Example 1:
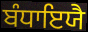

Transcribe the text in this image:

ਬੰਧਾਇਯੈ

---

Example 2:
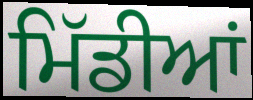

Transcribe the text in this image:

ਮਿੱਡੀਆਂ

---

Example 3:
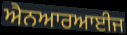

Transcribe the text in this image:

ਐਨਆਰਆਈਜ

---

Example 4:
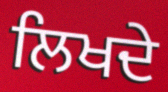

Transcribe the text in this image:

ਲਿਖਦੇ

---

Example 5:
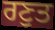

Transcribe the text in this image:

ਰਣੁਤ